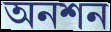
অনশন